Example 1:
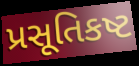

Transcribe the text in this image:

પ્રસૂતિકષ્ટ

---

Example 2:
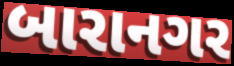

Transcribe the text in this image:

બારાનગર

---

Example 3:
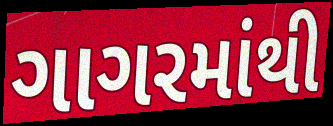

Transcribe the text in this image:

ગાગરમાંથી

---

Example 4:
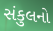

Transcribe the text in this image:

સંકુલનો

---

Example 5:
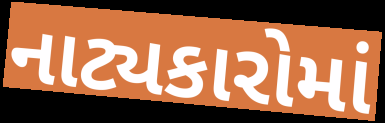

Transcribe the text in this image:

નાટ્યકારોમાં